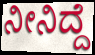
ನೀನಿದ್ದೆ